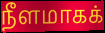
நீளமாகக்